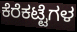
ಕೆರೆಕಟ್ಟೆಗಳ